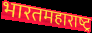
भारतमहाराष्ट्र